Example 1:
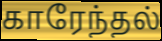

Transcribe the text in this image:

காரேந்தல்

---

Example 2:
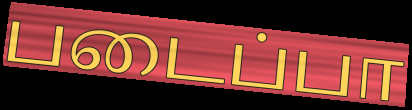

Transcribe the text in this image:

படைப்பா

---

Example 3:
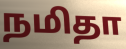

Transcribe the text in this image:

நமிதா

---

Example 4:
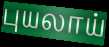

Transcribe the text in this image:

புயலாய்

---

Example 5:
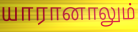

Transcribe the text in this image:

யாரானாலும்